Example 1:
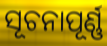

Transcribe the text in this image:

ସୂଚନାପୂର୍ଣ୍ଣ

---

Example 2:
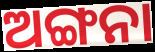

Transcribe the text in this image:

ଅଙ୍ଗନା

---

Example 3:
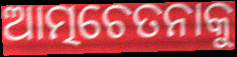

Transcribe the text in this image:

ଆତ୍ମଚେତନାକୁ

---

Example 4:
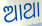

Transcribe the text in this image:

ଆଥା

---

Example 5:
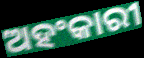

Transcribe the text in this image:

ଅହଂକାରୀ